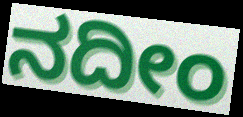
ನದೀಂ